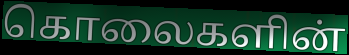
கொலைகளின்